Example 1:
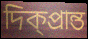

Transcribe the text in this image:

দিক্‌প্রান্ত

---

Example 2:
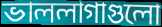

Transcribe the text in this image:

ভাললাগাগুলো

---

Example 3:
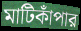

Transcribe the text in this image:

মাটিকাঁপার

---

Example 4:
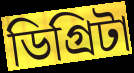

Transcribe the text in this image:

ডিগ্রিটা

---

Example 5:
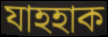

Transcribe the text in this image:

যাহহাক